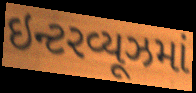
ઇન્ટરવ્યૂઝમાં